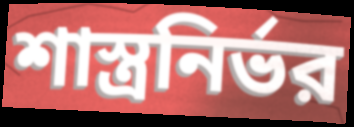
শাস্ত্রনির্ভর